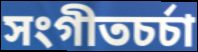
সংগীতচর্চা